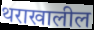
थराखालील